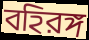
বহিরঙ্গ